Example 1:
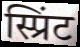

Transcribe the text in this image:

स्प्रिंट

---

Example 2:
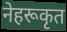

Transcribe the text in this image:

नेहरूकृत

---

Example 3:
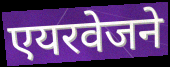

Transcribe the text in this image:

एयरवेजने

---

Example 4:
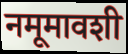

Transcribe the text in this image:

नमूमावशी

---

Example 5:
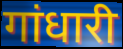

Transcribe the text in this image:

गांधारी